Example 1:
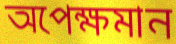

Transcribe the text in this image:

অপেক্ষমান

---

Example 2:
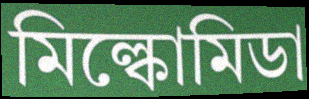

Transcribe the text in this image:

মিল্কোমিডা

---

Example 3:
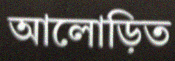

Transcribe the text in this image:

আলোড়িত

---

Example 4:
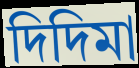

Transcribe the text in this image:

দিদিমা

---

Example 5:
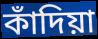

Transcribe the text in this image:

কাঁদিয়া